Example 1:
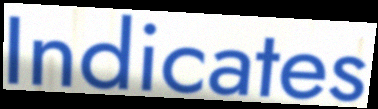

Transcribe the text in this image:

Indicates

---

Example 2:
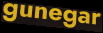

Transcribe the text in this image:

gunegar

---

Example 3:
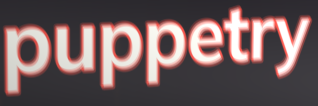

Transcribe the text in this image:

puppetry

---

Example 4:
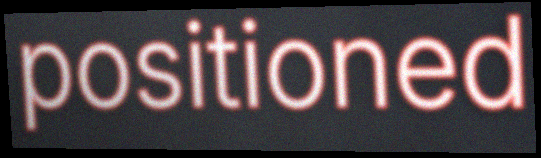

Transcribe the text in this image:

positioned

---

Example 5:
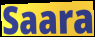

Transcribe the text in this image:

Saara